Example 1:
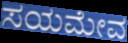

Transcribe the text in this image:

ಸಯಮೇವ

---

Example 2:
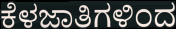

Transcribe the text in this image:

ಕೆಳಜಾತಿಗಳಿಂದ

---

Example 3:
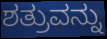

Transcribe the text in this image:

ಶತ್ರುವನ್ನು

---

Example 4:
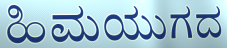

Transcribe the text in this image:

ಹಿಮಯುಗದ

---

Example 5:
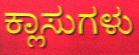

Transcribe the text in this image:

ಕ್ಲಾಸುಗಳು